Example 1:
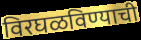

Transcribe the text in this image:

विरघळविण्याची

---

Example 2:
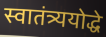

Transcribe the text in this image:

स्वातंत्र्ययोद्धे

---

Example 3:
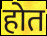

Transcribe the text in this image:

होत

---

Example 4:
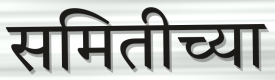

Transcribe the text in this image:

समितीच्‍या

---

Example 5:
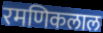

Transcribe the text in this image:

रमणिकलाल